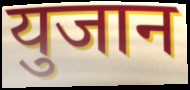
युजान